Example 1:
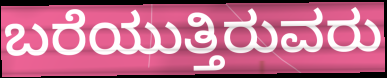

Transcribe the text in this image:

ಬರೆಯುತ್ತಿರುವರು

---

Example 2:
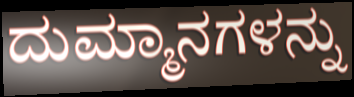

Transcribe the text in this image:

ದುಮ್ಮಾನಗಳನ್ನು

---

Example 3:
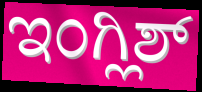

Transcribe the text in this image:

ಇಂಗ್ಲಿಶ್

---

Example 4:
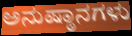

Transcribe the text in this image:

ಅನುಷ್ಠಾನಗಳು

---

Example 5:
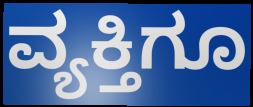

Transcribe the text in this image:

ವ್ಯಕ್ತಿಗೂ